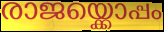
രാജയ്ക്കൊപ്പം